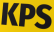
KPS